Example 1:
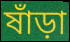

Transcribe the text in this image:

ষাঁড়া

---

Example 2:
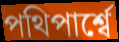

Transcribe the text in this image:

পথিপার্শ্বে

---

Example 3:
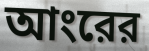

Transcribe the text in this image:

আংরের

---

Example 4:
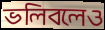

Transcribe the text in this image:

ভলিবলেও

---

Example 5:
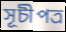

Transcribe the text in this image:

সূচীপত্র